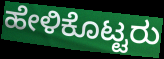
ಹೇಳಿಕೊಟ್ಟರು